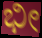
ಭೀ